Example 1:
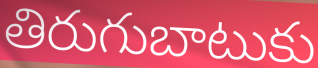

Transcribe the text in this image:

తిరుగుబాటుకు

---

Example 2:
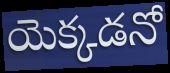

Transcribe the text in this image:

యెక్కడనో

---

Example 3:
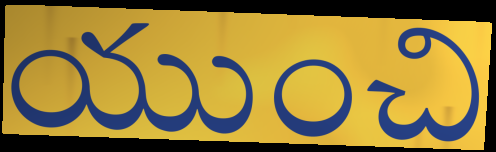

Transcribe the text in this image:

యుంచి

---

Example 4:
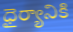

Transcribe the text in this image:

ధైర్యానికి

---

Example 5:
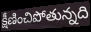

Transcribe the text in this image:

క్షీణించిపోతున్నది